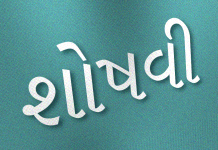
શોષવી